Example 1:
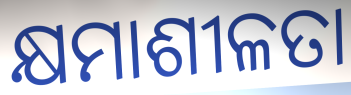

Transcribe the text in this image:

କ୍ଷମାଶୀଳତା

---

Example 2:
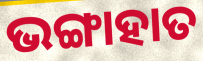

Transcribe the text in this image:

ଭଙ୍ଗାହାତ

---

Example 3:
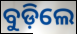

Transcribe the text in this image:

ବୁଡ଼ିଲେ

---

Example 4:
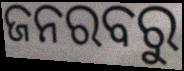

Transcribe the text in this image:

ଜନରବରୁ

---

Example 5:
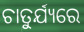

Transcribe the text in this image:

ଚାତୁର୍ଯ୍ୟରେ